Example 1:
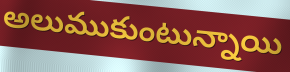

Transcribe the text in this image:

అలుముకుంటున్నాయి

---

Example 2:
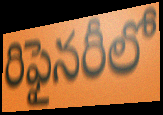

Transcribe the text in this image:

రిఫైనరీలో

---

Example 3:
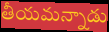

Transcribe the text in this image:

తీయమన్నాడు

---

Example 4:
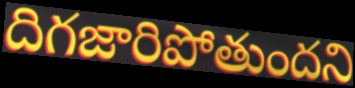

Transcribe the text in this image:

దిగజారిపోతుందని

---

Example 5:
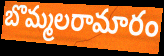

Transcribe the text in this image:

బొమ్మలరామారం